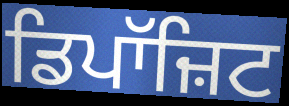
ਡਿਪਾੱਜ਼ਿਟ